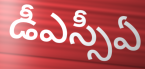
డీఎస్సీఏ